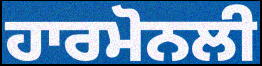
ਹਾਰਮੋਨਲੀ